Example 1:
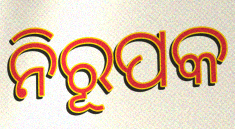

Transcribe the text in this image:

ନିରୂପକ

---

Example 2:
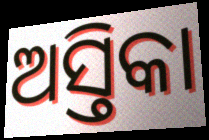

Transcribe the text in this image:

ଅସ୍ତିକା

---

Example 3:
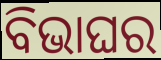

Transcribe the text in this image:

ବିଭାଘର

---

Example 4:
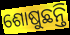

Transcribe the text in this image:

ଶୋଷୁଛନ୍ତି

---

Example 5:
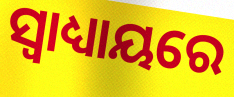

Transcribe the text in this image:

ସ୍ଵାଧ୍ୟାୟରେ